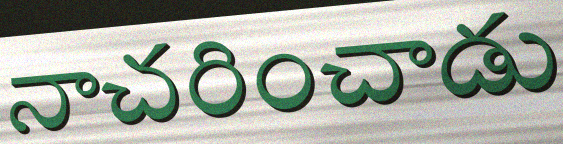
నాచరించాడు